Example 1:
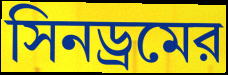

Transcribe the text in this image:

সিনড্রমের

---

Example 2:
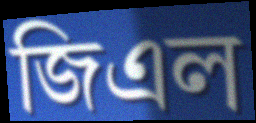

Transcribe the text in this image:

জিএল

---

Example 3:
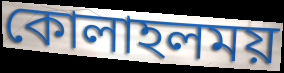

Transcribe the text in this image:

কোলাহলময়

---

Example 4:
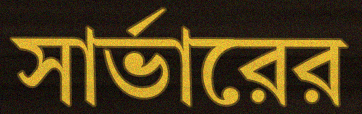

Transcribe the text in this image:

সার্ভারের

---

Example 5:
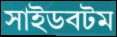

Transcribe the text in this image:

সাইডবটম